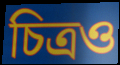
চিত্রও